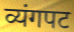
व्यंगपट